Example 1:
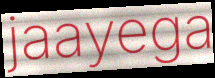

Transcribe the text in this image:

jaayega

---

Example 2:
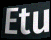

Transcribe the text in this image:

Etu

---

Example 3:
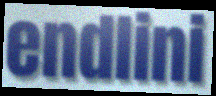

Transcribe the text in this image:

endlini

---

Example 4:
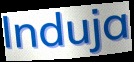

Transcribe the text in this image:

Induja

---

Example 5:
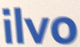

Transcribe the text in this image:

ilvo